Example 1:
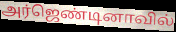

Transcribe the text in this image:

அர்ஜெண்டினாவில்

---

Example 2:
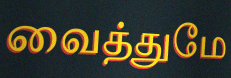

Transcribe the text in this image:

வைத்துமே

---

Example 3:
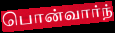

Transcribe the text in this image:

பொன்வார்ந்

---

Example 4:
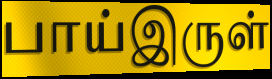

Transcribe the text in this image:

பாய்இருள்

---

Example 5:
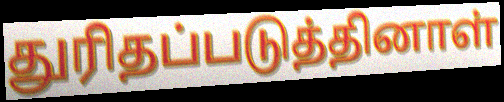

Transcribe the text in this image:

துரிதப்படுத்தினாள்